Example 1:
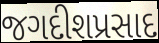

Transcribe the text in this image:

જગદીશપ્રસાદ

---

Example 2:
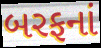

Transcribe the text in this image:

બરફનાં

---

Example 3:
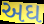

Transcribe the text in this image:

અઘ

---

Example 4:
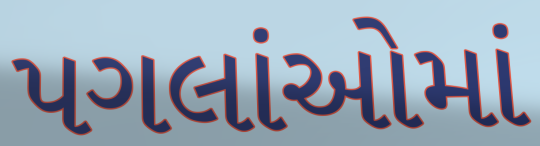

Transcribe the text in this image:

પગલાંઓમાં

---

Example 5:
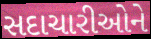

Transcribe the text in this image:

સદાચારીઓને